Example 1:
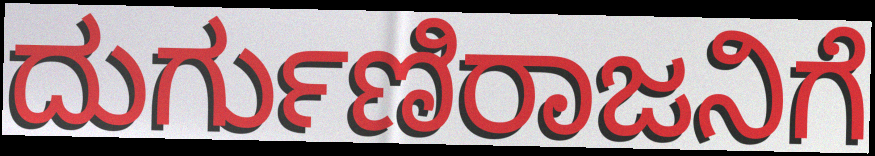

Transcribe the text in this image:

ದುರ್ಗುಣಿರಾಜನಿಗೆ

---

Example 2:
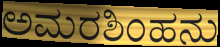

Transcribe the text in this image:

ಅಮರಶಿಂಹನು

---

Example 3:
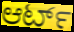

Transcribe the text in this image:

ಆರ್ಟ್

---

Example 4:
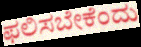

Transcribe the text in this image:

ಫಲಿಸಬೇಕೆಂದು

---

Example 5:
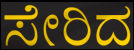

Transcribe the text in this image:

ಸೇರಿದ